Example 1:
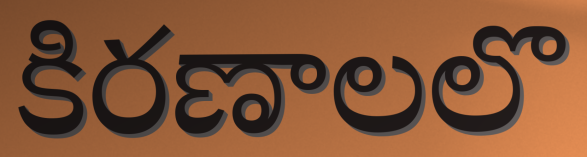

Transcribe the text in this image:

కిరణాలలొ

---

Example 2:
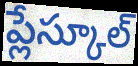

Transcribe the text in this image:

ప్లేస్కూల్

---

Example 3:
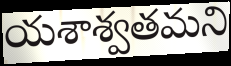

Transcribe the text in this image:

యశాశ్వతమని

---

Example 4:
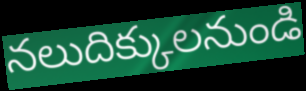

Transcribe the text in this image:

నలుదిక్కులనుండి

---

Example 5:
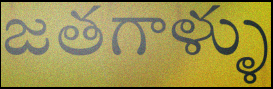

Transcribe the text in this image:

జతగాళ్ళు